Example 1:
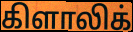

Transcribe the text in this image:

கிளாலிக்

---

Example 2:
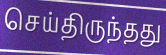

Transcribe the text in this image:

செய்திருந்தது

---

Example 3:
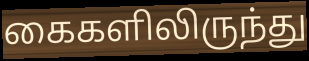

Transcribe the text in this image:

கைகளிலிருந்து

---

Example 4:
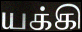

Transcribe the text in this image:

யக்கி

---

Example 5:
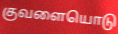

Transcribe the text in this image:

குவளையொடு